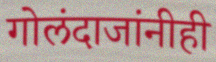
गोलंदाजांनीही